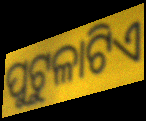
ପୁଟୁଳାଟିଏ